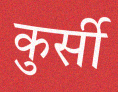
कुर्सी